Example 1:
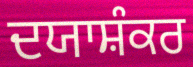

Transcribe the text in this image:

ਦਯਾਸ਼ੰਕਰ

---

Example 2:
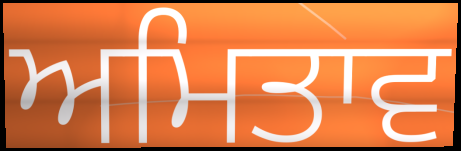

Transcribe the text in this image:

ਅਮਿਤਾਵ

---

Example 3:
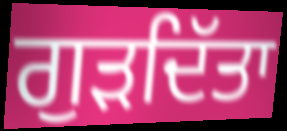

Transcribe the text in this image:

ਗੁੜਦਿੱਤਾ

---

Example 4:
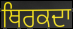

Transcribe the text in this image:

ਥਿਰਕਦਾ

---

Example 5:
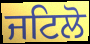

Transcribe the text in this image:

ਜਟਿਲੋ